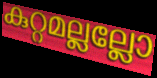
കുറ്റമല്ലല്ലോ